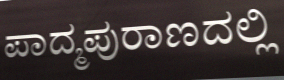
ಪಾದ್ಮಪುರಾಣದಲ್ಲಿ